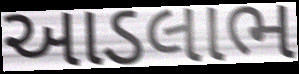
આડલાભ